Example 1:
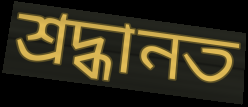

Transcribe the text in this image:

শ্রদ্ধানত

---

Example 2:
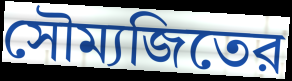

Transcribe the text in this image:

সৌম্যজিতের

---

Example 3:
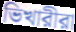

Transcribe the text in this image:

ভিখারীরা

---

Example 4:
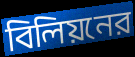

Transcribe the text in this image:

বিলিয়নের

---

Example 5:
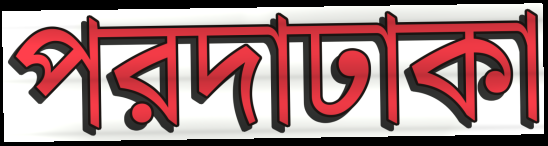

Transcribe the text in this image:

পরদাঢাকা